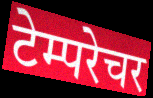
टेम्परेचर